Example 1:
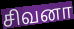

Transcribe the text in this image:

சிவனா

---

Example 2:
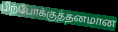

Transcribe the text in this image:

பிற்போக்குத்தனமான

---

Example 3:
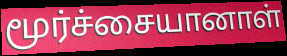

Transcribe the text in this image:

மூர்ச்சையானாள்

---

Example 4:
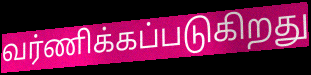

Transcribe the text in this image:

வர்ணிக்கப்படுகிறது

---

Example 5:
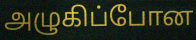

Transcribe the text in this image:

அழுகிப்போன